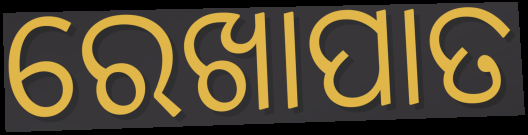
ରେଖାପାତ